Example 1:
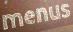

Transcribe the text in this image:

menus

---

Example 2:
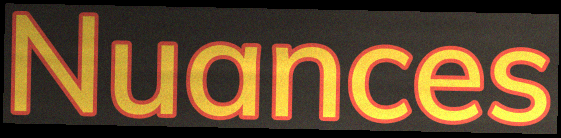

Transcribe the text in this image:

Nuances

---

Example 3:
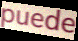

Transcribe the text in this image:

puede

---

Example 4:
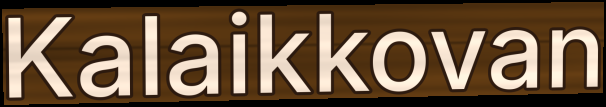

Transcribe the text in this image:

Kalaikkovan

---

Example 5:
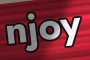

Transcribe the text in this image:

njoy